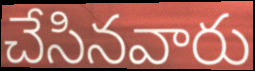
చేసినవారు